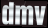
dmv